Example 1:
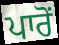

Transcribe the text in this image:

ਪਾਰੋਂ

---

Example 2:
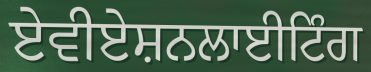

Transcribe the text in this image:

ਏਵੀਏਸ਼ਨਲਾਈਟਿੰਗ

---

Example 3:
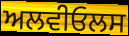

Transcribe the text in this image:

ਅਲਵੀਓਲਸ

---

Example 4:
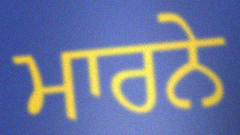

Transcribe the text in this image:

ਮਾਰਨੇ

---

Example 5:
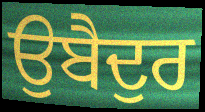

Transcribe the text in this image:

ਉਬੈਦੁਰ